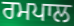
ਰਮਪਾਲ